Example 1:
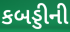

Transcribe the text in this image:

કબડ્ડીની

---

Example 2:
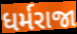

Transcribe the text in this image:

ધર્મરાજા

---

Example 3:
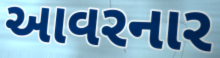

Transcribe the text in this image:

આવરનાર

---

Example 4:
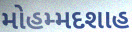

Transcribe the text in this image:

મોહમ્મદશાહ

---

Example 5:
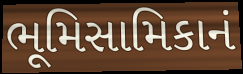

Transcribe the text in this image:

ભૂમિસામિકાનં